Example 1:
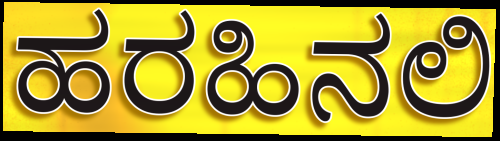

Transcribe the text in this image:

ಹರಹಿನಲಿ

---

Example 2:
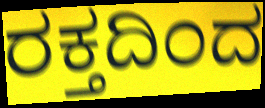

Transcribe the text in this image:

ರಕ್ತದಿಂದ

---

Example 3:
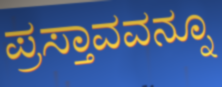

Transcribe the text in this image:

ಪ್ರಸ್ತಾವವನ್ನೂ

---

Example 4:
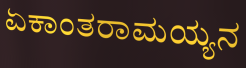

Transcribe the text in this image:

ಏಕಾಂತರಾಮಯ್ಯನ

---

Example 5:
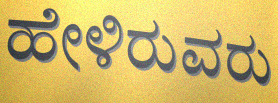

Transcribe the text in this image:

ಹೇಳಿರುವರು